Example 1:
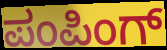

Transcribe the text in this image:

ಪಂಪಿಂಗ್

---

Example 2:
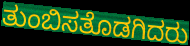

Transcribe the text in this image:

ತುಂಬಿಸತೊಡಗಿದರು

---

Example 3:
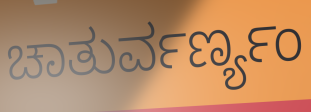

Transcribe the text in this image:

ಚಾತುರ್ವರ್ಣ್ಯಂ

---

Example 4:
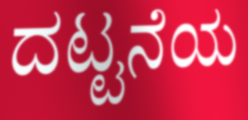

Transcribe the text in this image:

ದಟ್ಟನೆಯ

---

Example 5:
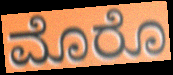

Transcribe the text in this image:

ಮೊರೊ